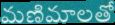
మణిమాలతో